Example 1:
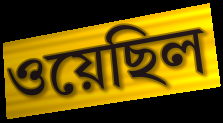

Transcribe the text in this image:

ওয়েছিল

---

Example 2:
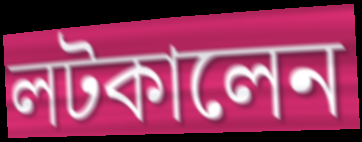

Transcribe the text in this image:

লটকালেন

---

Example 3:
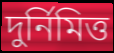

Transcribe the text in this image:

দুর্নিমিত্ত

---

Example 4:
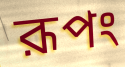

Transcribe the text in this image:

রূপং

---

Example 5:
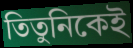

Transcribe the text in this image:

তিতুনিকেই